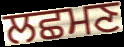
ਲਛਮਣ